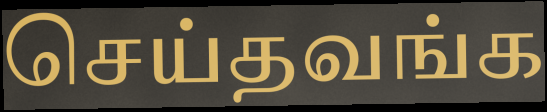
செய்தவங்க